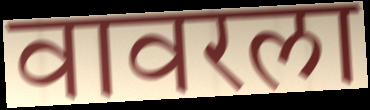
वावरला